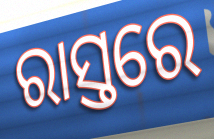
ରାସ୍ତରେ